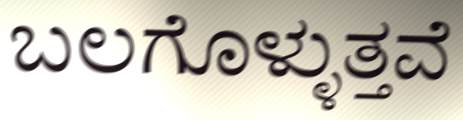
ಬಲಗೊಳ್ಳುತ್ತವೆ